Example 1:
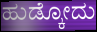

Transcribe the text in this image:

ಹುಡ್ಕೋದು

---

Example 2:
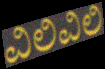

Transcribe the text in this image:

ವಿಲಿವಿಲಿ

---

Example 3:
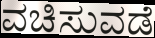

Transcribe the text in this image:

ವಚಿಸುವಡೆ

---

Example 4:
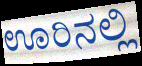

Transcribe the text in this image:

ಊರಿನಲ್ಲಿ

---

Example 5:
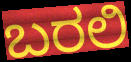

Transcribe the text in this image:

ಬರಲಿ